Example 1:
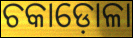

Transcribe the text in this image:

ଚକାଡ଼ୋଳା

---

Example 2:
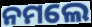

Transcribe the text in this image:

ନମଲେ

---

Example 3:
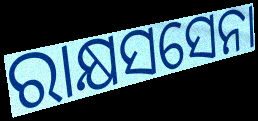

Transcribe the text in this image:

ରାକ୍ଷସସେନା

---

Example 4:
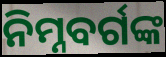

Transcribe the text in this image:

ନିମ୍ନବର୍ଗଙ୍କ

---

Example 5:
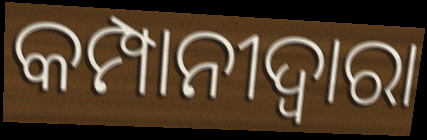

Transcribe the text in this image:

କମ୍ପାନୀଦ୍ୱାରା